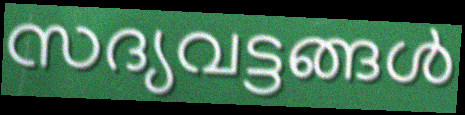
സദ്യവട്ടങ്ങൾ